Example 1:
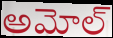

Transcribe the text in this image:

అమోల్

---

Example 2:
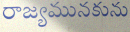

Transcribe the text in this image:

రాజ్యమునకును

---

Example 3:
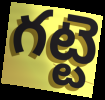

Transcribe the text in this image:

గట్టె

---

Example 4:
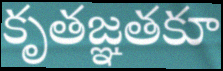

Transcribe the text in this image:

కృతజ్ఞతకూ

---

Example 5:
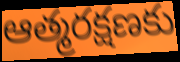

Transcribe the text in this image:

ఆత్మరక్షణకు